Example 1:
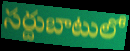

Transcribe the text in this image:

సర్దుబాటులో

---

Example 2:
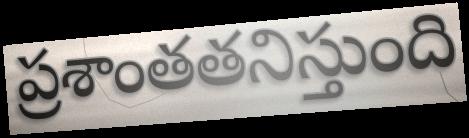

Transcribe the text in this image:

ప్రశాంతతనిస్తుంది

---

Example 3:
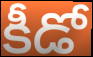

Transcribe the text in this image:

కీడో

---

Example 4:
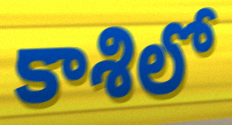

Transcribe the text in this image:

కాశిలో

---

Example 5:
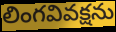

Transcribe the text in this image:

లింగవివక్షను